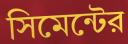
সিমেন্টের